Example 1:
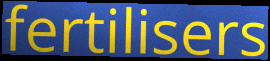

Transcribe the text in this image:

fertilisers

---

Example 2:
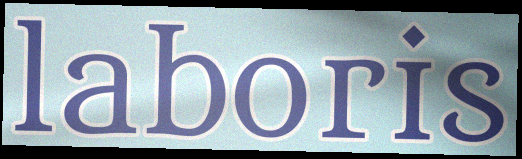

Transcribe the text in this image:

laboris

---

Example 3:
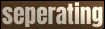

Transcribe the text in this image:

seperating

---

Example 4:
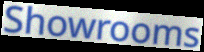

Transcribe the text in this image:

Showrooms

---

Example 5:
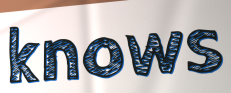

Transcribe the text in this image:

knows